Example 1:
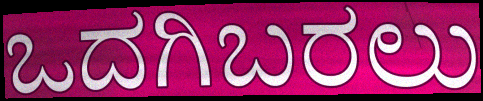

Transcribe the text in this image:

ಒದಗಿಬರಲು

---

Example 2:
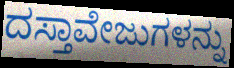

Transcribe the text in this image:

ದಸ್ತಾವೇಜುಗಳನ್ನು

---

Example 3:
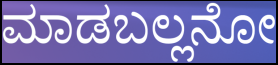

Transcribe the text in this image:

ಮಾಡಬಲ್ಲನೋ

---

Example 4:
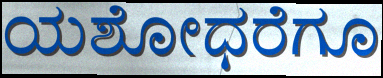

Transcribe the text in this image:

ಯಶೋಧರೆಗೂ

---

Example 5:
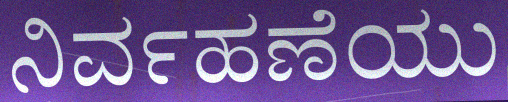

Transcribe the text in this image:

ನಿರ್ವಹಣೆಯು